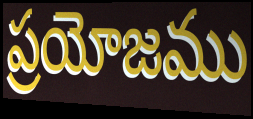
ప్రయోజము